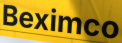
Beximco